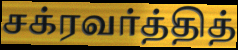
சக்ரவர்த்தித்